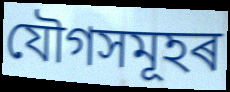
যৌগসমূহৰ